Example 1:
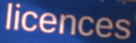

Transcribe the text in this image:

licences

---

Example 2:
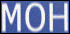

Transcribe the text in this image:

MOH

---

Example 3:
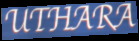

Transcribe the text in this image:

UTHARA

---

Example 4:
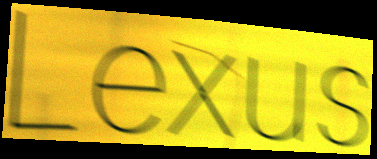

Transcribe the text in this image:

Lexus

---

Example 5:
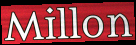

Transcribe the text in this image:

Millon